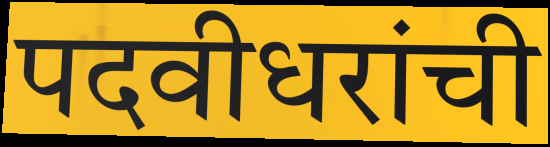
पदवीधरांची